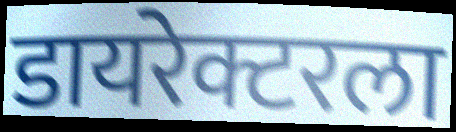
डायरेक्टरला